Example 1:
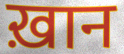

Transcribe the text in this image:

ख़ान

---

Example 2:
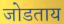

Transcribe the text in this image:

जोडताय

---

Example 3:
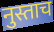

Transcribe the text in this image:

नुस्ताच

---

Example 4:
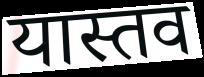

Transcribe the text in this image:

यास्तव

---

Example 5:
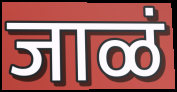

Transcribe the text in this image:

जाळं